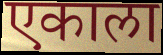
एकाला